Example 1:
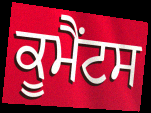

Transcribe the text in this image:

ਕੂਮੈਂਟਸ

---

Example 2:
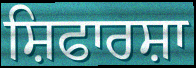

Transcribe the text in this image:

ਸ਼ਿਫਾਰਸ਼ਾ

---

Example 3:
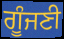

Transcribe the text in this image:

ਗੂੰਜਣੀ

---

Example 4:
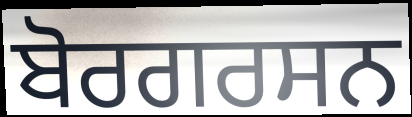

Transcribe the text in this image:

ਬੋਰਗਰਸਨ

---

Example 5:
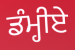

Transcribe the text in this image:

ਡੰਮ੍ਹੀਏ